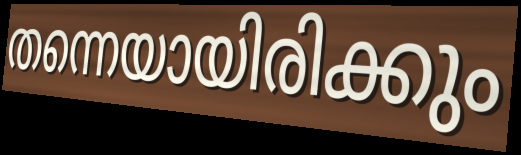
തന്നെയായിരിക്കും